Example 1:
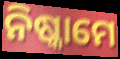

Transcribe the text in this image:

ନିଷ୍କାମେ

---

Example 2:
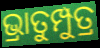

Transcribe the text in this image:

ଭ୍ରାତୁମ୍ପୁତ୍ର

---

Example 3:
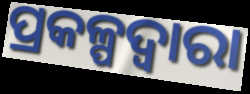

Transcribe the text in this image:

ପ୍ରକଳ୍ପଦ୍ୱାରା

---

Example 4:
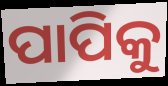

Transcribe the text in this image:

ପାପିକୁ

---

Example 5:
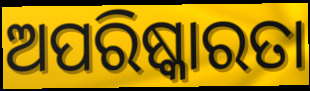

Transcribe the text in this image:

ଅପରିଷ୍କାରତା